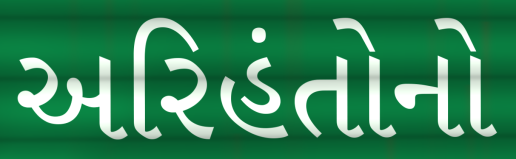
અરિહંતોનો